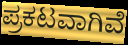
ಪ್ರಕಟವಾಗಿವೆ